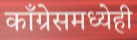
काँग्रेसमध्येही